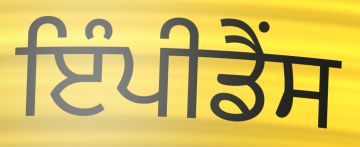
ਇੰਪੀਡੈਂਸ